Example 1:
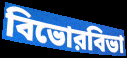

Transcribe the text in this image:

বিভোরবিভা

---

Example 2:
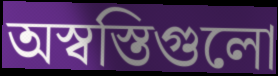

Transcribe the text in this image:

অস্বস্তিগুলো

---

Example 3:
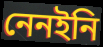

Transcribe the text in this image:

নেনইনি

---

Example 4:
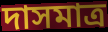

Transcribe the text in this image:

দাসমাত্র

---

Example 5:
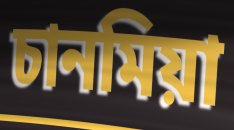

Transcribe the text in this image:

চানমিয়া